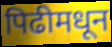
पिढीमधून